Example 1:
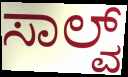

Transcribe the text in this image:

ಸಾಲ್ವ್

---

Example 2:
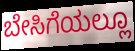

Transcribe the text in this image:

ಬೇಸಿಗೆಯಲ್ಲೂ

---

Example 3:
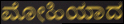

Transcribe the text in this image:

ಮೋಹಿಯಾದ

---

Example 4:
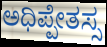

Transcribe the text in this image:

ಅಧಿಪ್ಪೇತಸ್ಸ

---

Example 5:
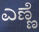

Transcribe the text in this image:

ಎಣ್ಣೆ